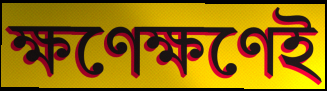
ক্ষণেক্ষণেই